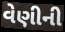
વેણીની